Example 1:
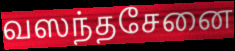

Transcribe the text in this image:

வஸந்தசேனை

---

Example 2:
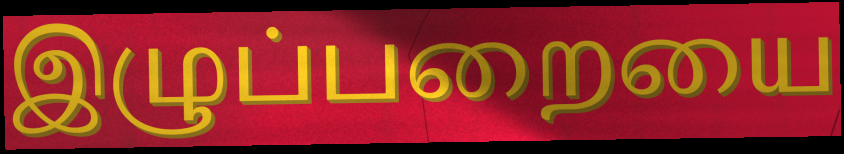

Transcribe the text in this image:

இழுப்பறையை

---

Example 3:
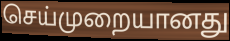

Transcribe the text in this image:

செய்முறையானது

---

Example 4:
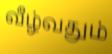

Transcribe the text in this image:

வீழ்வதும்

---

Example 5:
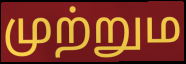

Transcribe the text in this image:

முற்றும